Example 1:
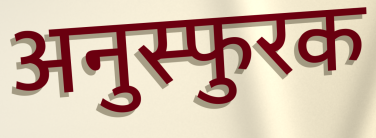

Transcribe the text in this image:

अनुस्फुरक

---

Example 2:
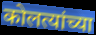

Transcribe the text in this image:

कोलत्यांच्या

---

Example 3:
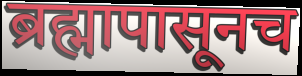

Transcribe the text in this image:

ब्रह्मापासूनच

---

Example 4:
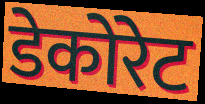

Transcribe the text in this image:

डेकोरेट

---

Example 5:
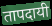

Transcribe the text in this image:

तापदायी